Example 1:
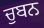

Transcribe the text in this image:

ਚੁਬਨ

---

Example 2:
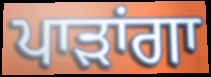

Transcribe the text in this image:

ਪਾੜਾਂਗਾ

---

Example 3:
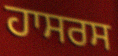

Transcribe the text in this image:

ਹਾਸਰਸ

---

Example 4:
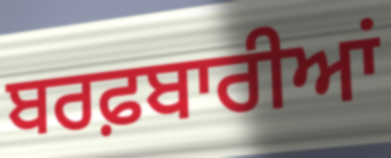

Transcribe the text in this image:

ਬਰਫ਼ਬਾਰੀਆਂ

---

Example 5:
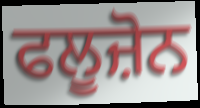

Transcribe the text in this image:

ਫਲੂਜ਼ੋਨ